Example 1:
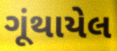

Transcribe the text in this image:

ગૂંથાયેલ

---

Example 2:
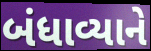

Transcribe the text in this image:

બંધાવ્યાને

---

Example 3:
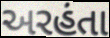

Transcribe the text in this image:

અરહંતા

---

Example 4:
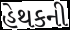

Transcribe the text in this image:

હેથકની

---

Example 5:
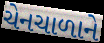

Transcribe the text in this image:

ચેનચાળાને